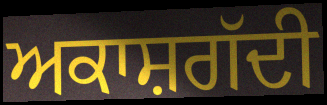
ਅਕਾਸ਼ਗੱਦੀ